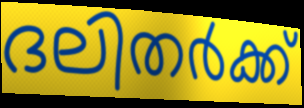
ദലിതർക്ക്